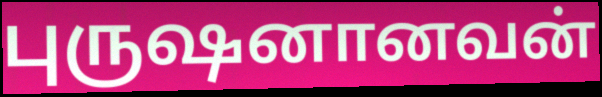
புருஷனானவன்